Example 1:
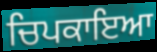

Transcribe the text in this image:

ਚਿਪਕਾਇਆ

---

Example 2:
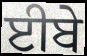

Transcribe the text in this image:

ਈਬੇ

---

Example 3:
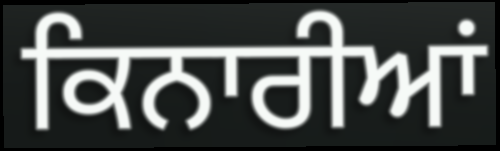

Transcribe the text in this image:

ਕਿਨਾਰੀਆਂ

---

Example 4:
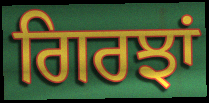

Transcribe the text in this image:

ਗਿਰਝਾਂ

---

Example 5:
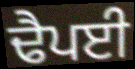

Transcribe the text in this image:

ਢੈਪਈ